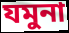
যমুনা